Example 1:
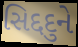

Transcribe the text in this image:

સિદ્દદુને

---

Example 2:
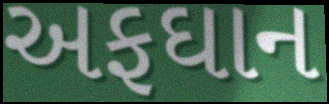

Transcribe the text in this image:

અફઘાન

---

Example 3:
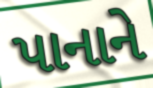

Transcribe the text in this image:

પાનાને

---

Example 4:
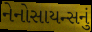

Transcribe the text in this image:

નેનોસાયન્સનું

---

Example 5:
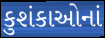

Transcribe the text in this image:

કુશંકાઓનાં